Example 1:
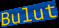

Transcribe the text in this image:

Bulut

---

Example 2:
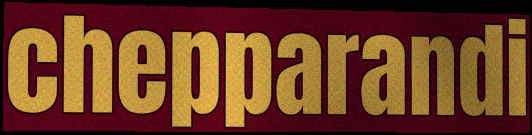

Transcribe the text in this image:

chepparandi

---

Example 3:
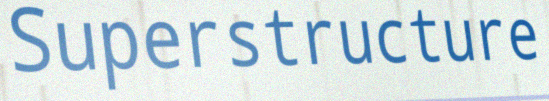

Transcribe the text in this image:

Superstructure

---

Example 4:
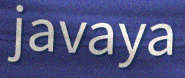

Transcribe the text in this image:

javaya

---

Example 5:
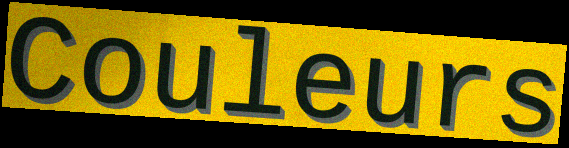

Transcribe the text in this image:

Couleurs